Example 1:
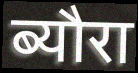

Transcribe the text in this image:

ब्यौरा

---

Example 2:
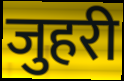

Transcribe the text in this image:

जुहरी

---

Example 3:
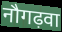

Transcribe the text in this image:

नौगढ़वा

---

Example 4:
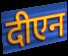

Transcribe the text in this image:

दीएन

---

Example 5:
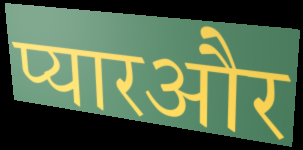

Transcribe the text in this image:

प्यारऔर